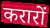
करारों